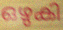
ഒഴുകി